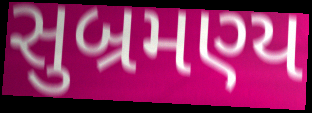
સુબ્રમણ્ય